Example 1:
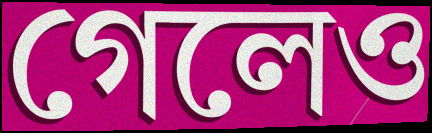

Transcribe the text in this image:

গেলেও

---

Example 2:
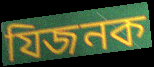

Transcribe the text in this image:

যিজনক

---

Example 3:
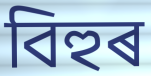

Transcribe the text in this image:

বিহুৰ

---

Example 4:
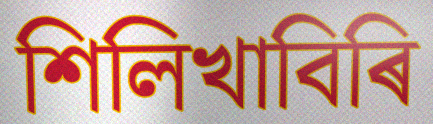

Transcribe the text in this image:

শিলিখাবিৰি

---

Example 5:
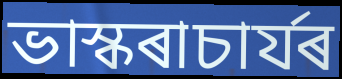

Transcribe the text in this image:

ভাস্কৰাচাৰ্যৰ